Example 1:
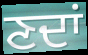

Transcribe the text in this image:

ਣਦਾਂ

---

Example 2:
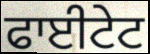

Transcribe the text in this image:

ਫਾਈਟੇਟ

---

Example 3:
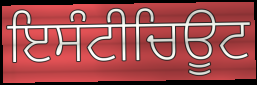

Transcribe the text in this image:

ਇਸੰਟੀਚਿਊਟ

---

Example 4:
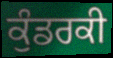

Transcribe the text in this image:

ਕੁੰਡਰਕੀ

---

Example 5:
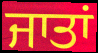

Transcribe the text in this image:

ਜਾਤਾਂ